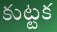
కుట్టక